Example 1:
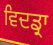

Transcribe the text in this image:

ਵਿਦਡ੍ਰਾ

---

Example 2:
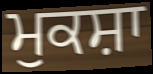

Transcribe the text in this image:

ਮੁਕਸ਼ਾ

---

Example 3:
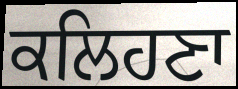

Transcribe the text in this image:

ਕਲਿਹਣਾ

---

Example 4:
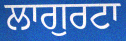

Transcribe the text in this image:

ਲਾਗੁਰਟਾ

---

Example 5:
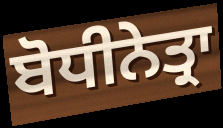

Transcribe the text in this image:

ਬੋਧੀਨੇਤ੍ਰਾ